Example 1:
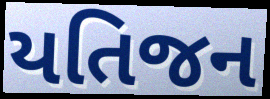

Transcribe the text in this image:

યતિજન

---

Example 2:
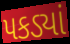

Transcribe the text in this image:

પકડ્યાં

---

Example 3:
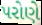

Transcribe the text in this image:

પરોણે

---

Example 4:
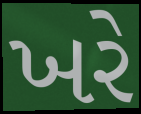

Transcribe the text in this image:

ખરે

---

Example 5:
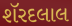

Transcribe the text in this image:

શૅરદલાલ